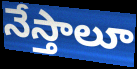
నేస్తాలూ